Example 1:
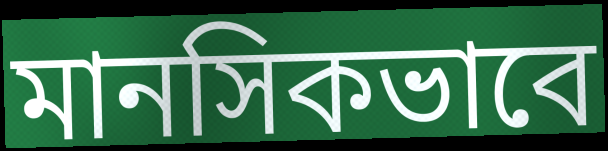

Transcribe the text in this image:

মানসিকভাবে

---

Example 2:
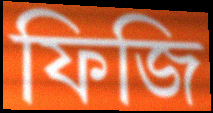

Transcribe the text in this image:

ফিজি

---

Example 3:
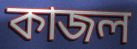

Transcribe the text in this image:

কাজল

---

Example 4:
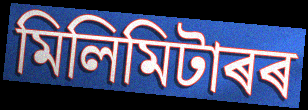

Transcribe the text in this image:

মিলিমিটাৰৰ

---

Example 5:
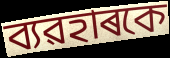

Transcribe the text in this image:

ব্যৱহাৰকে